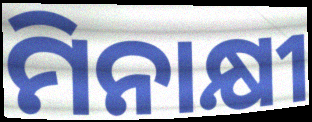
ମିନାକ୍ଷୀ